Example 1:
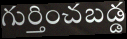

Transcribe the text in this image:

గుర్తించబడ్డ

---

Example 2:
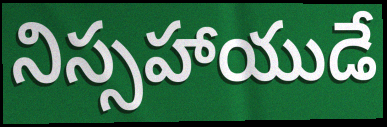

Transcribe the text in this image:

నిస్సహాయుడే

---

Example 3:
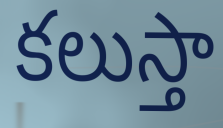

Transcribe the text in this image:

కలుస్తా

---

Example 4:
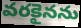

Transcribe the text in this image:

వరకైనను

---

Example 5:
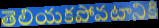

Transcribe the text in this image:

తెలియకపోవటానికి